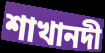
শাখানদী